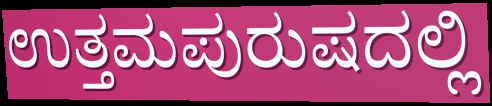
ಉತ್ತಮಪುರುಷದಲ್ಲಿ